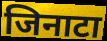
जिनाटा